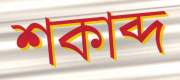
শকাব্দ